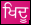
ਖਿਦੂ